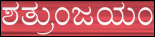
ಶತ್ರುಂಜಯಂ